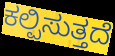
ಕಲ್ಪಿಸುತ್ತದೆ